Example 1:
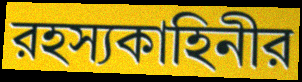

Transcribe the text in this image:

রহস্যকাহিনীর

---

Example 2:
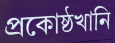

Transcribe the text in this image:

প্রকোষ্ঠখানি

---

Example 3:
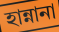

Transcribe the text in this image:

হান্নানা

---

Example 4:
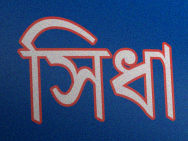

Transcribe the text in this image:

সিধা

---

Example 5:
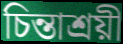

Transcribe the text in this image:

চিন্তাশ্রয়ী